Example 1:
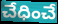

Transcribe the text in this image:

చేధించే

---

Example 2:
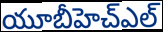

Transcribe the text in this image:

యూబీహెచ్ఎల్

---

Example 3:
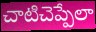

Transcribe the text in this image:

చాటిచెప్పేలా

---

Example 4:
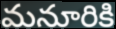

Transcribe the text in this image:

మనూరికి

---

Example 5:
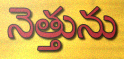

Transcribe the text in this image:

నెత్తును